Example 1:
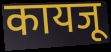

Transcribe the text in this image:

कायजू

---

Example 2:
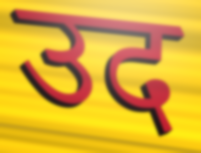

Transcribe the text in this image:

उद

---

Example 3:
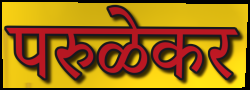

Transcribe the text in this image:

परुळेकर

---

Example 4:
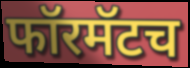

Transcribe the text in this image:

फॉरमॅटच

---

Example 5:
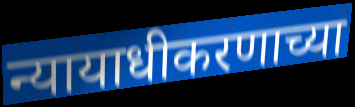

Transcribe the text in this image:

न्यायाधीकरणाच्या